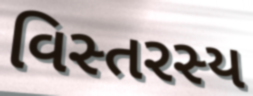
વિસ્તરસ્ય